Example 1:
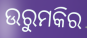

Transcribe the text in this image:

ଉରୁମକିର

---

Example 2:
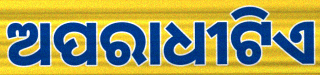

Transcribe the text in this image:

ଅପରାଧୀଟିଏ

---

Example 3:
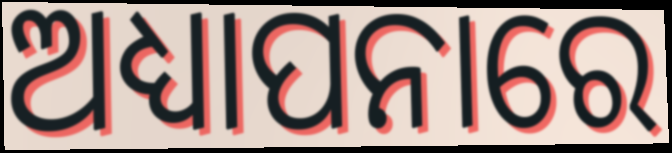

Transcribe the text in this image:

ଅଧ୍ୟାପନାରେ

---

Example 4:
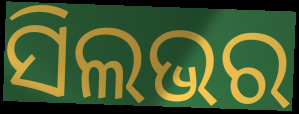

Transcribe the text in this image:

ସିଲଭର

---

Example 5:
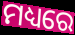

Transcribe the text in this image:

ମଧ୍ୟରେ